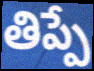
తిప్పే